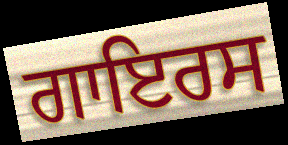
ਗਾਇਰਸ